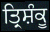
ਤ੍ਰਿਸ਼ੰਕੂ